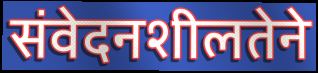
संवेदनशीलतेने